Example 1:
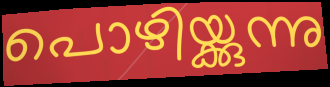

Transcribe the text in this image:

പൊഴിയ്ക്കുന്നു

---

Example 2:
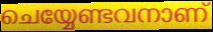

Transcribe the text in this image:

ചെയ്യേണ്ടവനാണ്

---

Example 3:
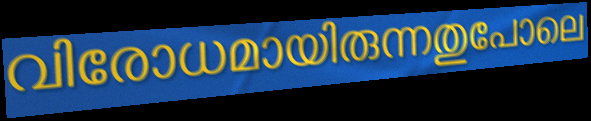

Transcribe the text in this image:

വിരോധമായിരുന്നതുപോലെ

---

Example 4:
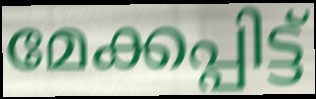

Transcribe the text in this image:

മേക്കപ്പിട്ട്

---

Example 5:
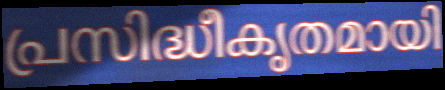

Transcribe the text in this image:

പ്രസിദ്ധീകൃതമായി